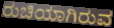
ರುಚಿಯಾಗಿರುವ